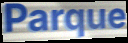
Parque